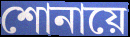
শোনায়ে